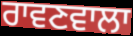
ਰਾਵਣਵਾਲਾ